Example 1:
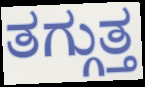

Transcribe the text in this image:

ತಗ್ಗುತ್ತ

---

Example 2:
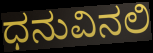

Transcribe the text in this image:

ಧನುವಿನಲಿ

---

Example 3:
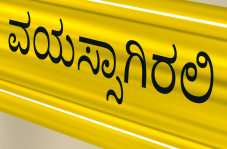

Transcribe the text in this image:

ವಯಸ್ಸಾಗಿರಲಿ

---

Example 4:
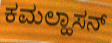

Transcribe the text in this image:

ಕಮಲ್ಹಾಸನ್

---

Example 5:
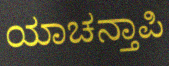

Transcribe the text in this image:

ಯಾಚನ್ತಾಪಿ